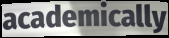
academically